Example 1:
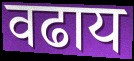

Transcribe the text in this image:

वढाय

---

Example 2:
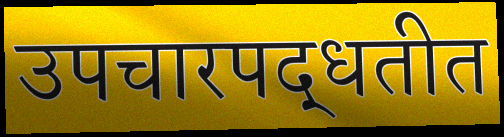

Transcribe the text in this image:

उपचारपद्धतीत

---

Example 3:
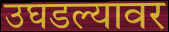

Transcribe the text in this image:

उघडल्यावर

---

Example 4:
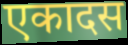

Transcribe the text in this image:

एकादस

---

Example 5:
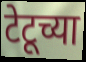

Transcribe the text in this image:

टेटूच्या